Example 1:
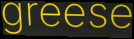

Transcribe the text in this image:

greese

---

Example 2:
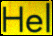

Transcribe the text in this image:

Hel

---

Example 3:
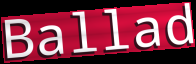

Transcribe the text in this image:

Ballad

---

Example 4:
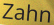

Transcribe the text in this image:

Zahn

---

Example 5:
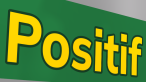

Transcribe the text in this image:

Positif